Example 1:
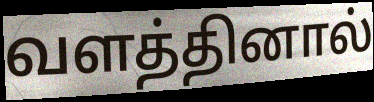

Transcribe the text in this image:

வளத்தினால்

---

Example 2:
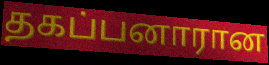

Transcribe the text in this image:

தகப்பனாரான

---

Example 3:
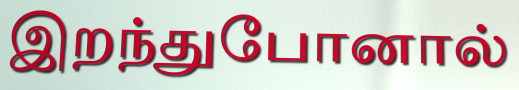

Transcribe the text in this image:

இறந்துபோனால்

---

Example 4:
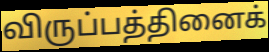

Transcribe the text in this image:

விருப்பத்தினைக்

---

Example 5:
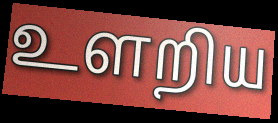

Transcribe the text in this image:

உளறிய